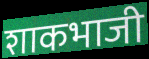
शाकभाजी